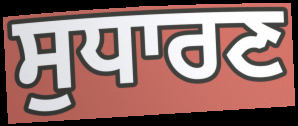
ਸੁਧਾਰਣ